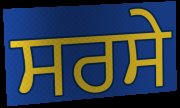
ਸਰਸੇ